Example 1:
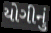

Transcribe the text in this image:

યોગીનું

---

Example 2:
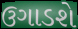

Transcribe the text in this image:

ઉગાડશે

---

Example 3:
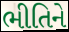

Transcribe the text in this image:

ભીતિને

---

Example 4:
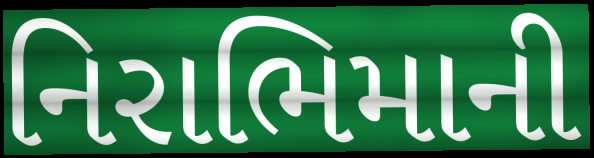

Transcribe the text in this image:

નિરાભિમાની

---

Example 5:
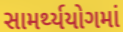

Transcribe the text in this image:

સામર્થ્યયોગમાં